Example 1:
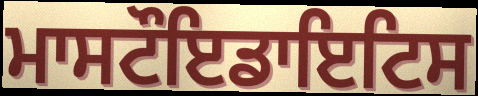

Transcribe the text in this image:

ਮਾਸਟੌਇਡਾਇਟਿਸ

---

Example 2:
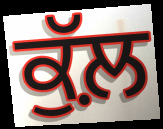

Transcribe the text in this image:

ਕੁੱਲ਼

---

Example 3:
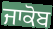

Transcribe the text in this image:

ਜਾਕੋਬ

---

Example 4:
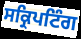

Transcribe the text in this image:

ਸਕ੍ਰਿਪਟਿੰਗ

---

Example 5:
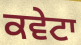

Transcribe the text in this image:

ਕਵੇਟਾ